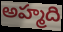
అహ్మది